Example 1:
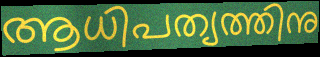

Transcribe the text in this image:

ആധിപത്യത്തിനു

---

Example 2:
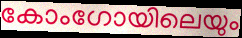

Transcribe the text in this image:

കോംഗോയിലെയും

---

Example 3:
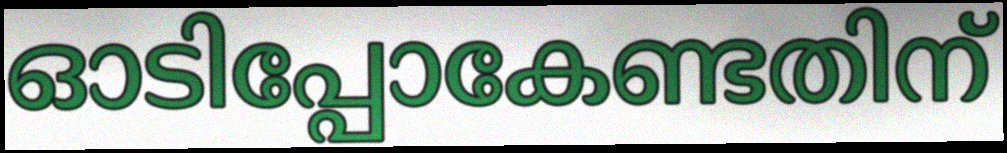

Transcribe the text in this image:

ഓടിപ്പോകേണ്ടതിന്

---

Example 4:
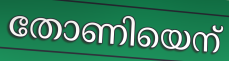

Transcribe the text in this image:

തോണിയെന്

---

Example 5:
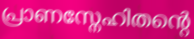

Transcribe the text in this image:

പ്രാണസ്നേഹിതന്റെ